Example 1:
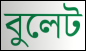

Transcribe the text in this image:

বুলেট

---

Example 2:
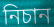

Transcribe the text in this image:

নিচান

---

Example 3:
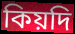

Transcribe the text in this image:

কিয়দি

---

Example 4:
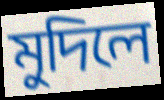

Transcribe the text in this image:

মুদিলে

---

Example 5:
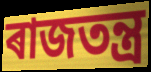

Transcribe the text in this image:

ৰাজতন্ত্ৰ